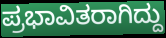
ಪ್ರಭಾವಿತರಾಗಿದ್ದು